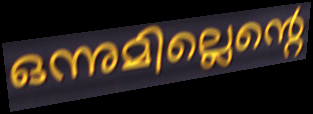
ഒന്നുമില്ലെന്റെ